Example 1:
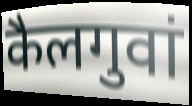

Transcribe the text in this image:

कैलगुवां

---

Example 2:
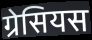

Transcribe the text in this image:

ग्रेसियस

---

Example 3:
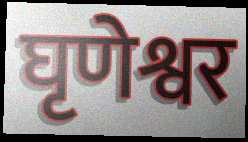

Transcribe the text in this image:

घृणेश्वर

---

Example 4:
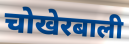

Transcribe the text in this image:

चोखेरबाली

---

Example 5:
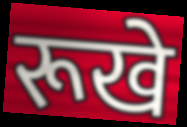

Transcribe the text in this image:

रूखे